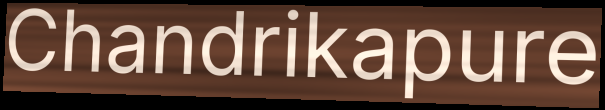
Chandrikapure